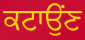
ਕਟਾਉਂਣ